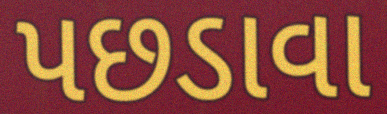
પછડાવા